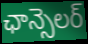
ఛాన్సెలర్